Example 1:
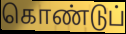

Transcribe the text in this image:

கொண்டுப்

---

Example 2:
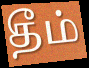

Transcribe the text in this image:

தீம்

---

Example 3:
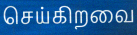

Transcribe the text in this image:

செய்கிறவை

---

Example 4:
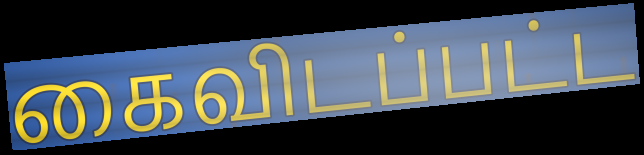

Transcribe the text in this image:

கைவிடப்பட்ட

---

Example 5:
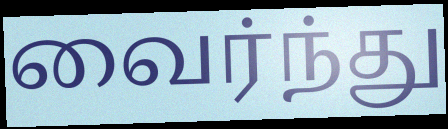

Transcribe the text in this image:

வைர்ந்து